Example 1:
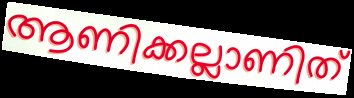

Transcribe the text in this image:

ആണിക്കല്ലാണിത്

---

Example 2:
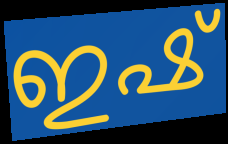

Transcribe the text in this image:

ഇഷ്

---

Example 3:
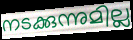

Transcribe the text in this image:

നടക്കുന്നുമില്ല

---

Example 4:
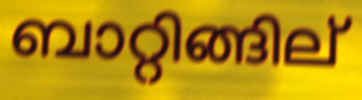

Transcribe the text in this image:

ബാറ്റിങ്ങില്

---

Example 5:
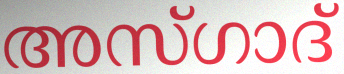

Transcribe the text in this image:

അസ്ഗാദ്